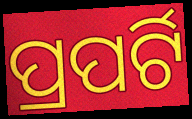
ପ୍ରପର୍ଟି